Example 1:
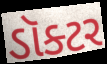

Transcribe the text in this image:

ડૉક્ટર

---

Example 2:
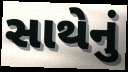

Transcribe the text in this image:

સાથેનું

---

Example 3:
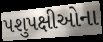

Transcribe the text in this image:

પશુપક્ષીઓના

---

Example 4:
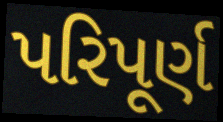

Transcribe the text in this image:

પરિપૂર્ણ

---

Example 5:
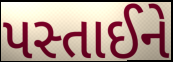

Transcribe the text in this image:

પસ્તાઈને